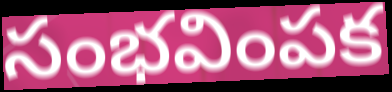
సంభవింపక